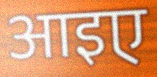
आइए